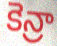
కెన్రా